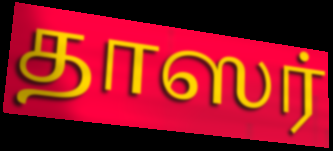
தாஸர்